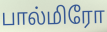
பால்மிரோ